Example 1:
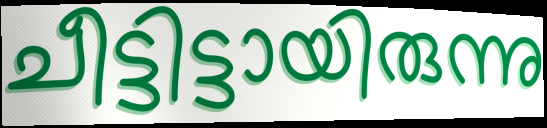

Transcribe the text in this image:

ചീട്ടിട്ടായിരുന്നു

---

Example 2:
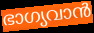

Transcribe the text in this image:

ഭാഗ്യവാൻ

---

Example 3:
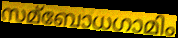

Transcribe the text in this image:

സമ്ബോധഗാമിം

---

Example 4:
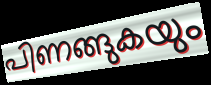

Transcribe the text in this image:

പിണങ്ങുകയും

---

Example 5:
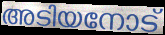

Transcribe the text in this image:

അടിയനോട്